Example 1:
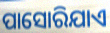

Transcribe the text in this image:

ପାସୋରିଯାଏ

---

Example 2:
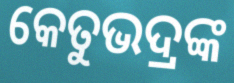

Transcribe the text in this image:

କେତୁଭଦ୍ରଙ୍କ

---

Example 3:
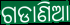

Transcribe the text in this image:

ଗଡାଣିଆ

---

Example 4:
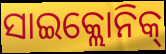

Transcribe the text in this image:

ସାଇକ୍ଲୋନିକ୍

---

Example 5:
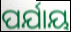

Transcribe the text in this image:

ପର୍ଯାୟ